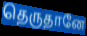
தெருதானே